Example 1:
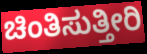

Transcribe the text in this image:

ಚಿಂತಿಸುತ್ತೀರಿ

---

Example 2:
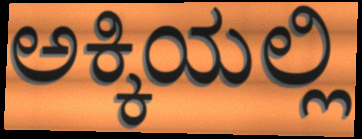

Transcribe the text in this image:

ಅಕ್ಕಿಯಲ್ಲಿ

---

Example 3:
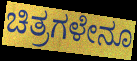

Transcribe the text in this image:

ಚಿತ್ರಗಳೇನೂ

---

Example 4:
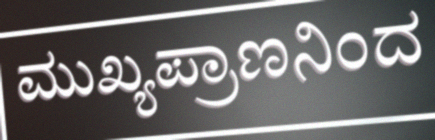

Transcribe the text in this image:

ಮುಖ್ಯಪ್ರಾಣನಿಂದ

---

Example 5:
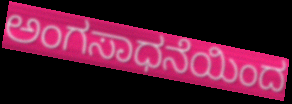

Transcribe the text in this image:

ಅಂಗಸಾಧನೆಯಿಂದ